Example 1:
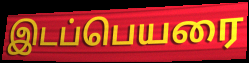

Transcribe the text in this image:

இடப்பெயரை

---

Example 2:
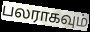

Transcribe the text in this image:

பலராகவும்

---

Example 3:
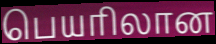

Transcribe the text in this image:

பெயரிலான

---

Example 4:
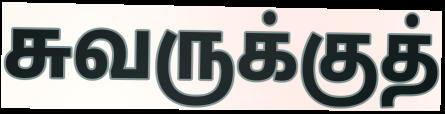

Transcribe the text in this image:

சுவருக்குத்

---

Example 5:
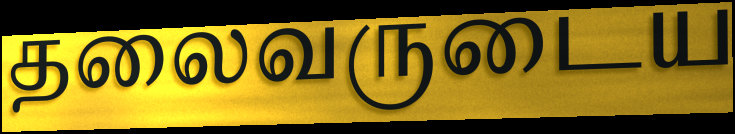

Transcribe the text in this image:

தலைவருடைய